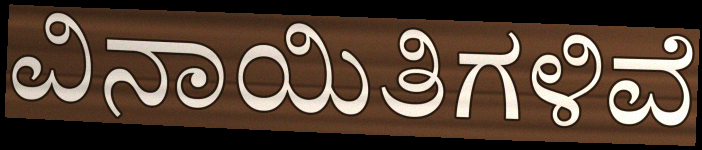
ವಿನಾಯಿತಿಗಳಿವೆ